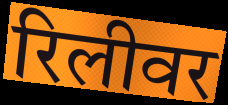
रिलीवर